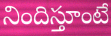
నిందిస్తూంటే